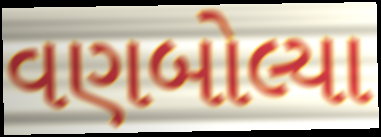
વણબોલ્યા